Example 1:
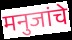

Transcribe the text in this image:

मनुजांचे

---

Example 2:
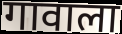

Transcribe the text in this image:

गावाला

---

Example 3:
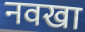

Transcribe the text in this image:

नवखा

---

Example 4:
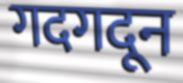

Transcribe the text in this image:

गदगदून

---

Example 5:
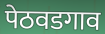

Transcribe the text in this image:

पेठवडगाव